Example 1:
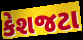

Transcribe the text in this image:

કેશજટા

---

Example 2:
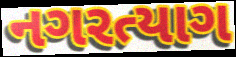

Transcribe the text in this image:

નગરત્યાગ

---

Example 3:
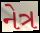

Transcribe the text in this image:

નેત્ર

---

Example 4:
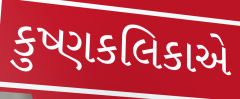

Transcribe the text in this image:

કુષ્ણકલિકાએ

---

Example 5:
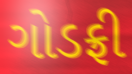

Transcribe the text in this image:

ગોડફ્રી